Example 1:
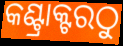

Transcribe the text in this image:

କଣ୍ଟ୍ରାକ୍ଟରଠୁ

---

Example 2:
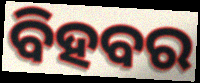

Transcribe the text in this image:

ବିହବର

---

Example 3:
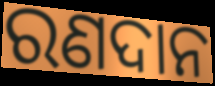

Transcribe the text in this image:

ରଣଦାନ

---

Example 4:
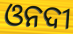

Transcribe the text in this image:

ଓନଦୀ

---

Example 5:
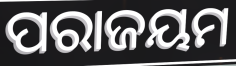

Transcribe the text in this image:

ପରାଜୟମ